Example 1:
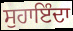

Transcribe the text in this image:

ਸੁਹਾਇੰਦਾ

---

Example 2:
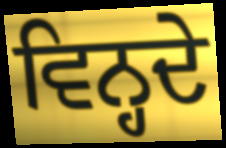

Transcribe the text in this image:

ਵਿਨ੍ਹਦੇ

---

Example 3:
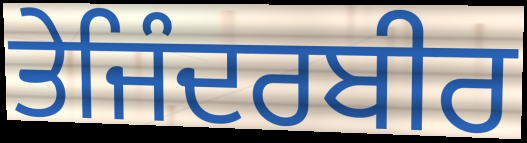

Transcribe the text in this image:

ਤੇਜਿੰਦਰਬੀਰ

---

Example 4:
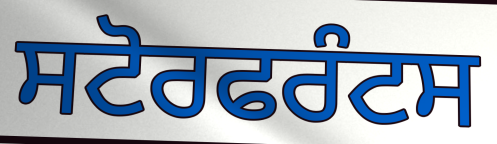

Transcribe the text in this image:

ਸਟੋਰਫਰੰਟਸ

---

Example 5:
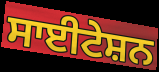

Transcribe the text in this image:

ਸਾਈਟੇਸ਼ਨ